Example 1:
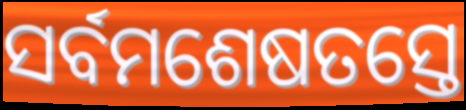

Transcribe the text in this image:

ସର୍ବମଶେଷତସ୍ତେ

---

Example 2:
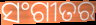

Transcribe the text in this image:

ସଂଗୀତର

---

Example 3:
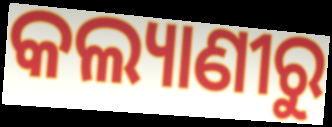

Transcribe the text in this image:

କଲ୍ୟାଣୀରୁ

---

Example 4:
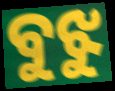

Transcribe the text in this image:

ବୁଝୁ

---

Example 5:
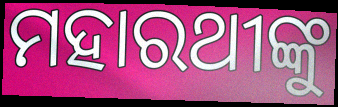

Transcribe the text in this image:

ମହାରଥୀଙ୍କୁ